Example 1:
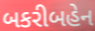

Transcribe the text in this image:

બકરીબહેન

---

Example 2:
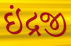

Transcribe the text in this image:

ઇંદ્રજી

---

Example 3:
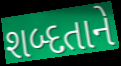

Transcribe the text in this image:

શબ્દતાને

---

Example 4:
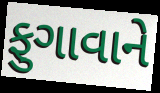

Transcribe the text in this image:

ફુગાવાને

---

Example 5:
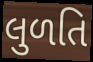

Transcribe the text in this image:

લુળતિ